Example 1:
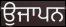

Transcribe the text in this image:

ਉਜਾਪਨ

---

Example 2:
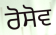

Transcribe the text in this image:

ਰੋਸੋਵ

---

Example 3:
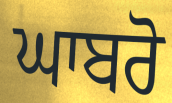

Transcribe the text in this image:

ਘਾਬਰੋ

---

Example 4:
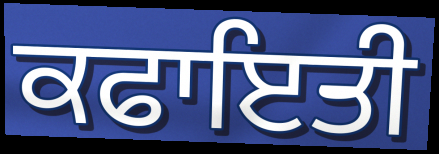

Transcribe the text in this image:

ਕਫਾਇਤੀ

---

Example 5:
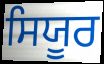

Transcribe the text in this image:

ਸਿਯੂਰ